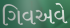
ગિવઅવે